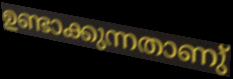
ഉണ്ടാക്കുന്നതാണു്